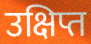
उक्षिप्त